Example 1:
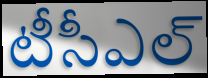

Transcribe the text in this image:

టీసీఎల్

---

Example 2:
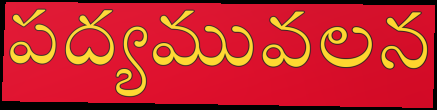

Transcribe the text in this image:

పద్యమువలన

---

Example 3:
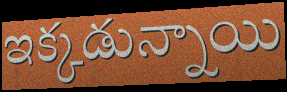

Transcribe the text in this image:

ఇక్కడున్నాయి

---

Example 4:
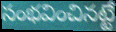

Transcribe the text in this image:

సంభవించినట్టే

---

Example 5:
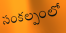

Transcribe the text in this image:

సంకల్పంలో